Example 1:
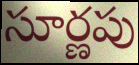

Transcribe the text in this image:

సూర్ణపు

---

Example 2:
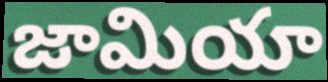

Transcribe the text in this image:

జామియా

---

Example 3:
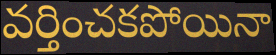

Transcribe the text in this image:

వర్తించకపోయినా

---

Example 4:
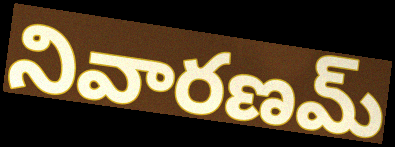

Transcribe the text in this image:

నివారణమ్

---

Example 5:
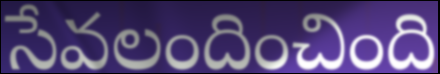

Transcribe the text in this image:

సేవలందించింది